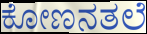
ಕೋಣನತಲೆ